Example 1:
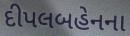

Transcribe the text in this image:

દીપલબહેનના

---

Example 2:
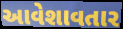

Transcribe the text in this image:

આવેશાવતાર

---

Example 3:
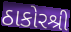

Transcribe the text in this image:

ઠાકોરશ્રી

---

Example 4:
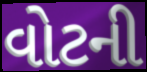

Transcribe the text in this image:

વોટની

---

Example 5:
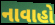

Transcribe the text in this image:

નાવાહો